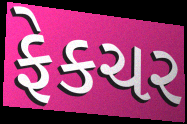
ફેકચર